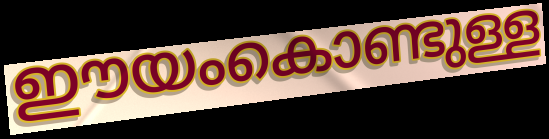
ഈയംകൊണ്ടുള്ള